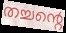
തച്ചന്റെ